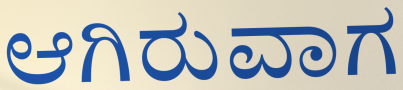
ಆಗಿರುವಾಗ